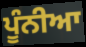
ਪੂੰਨੀਆ